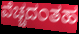
ವೆಚ್ಚದಂತಹ